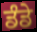
ਡੰਡੇ